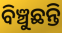
ବିଞ୍ଚୁଛନ୍ତି